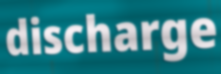
discharge